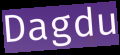
Dagdu